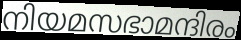
നിയമസഭാമന്ദിരം